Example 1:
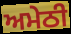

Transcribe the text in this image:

ਅਮੇਠੀ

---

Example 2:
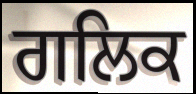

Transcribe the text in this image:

ਗਲਿਕ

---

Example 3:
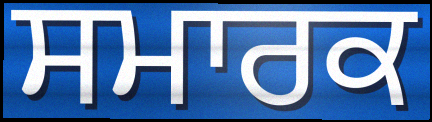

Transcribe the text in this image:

ਸਮਾਰਕ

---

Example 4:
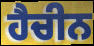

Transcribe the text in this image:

ਹੈਚੀਨ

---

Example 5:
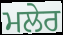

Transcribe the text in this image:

ਮਲੇਰ